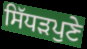
ਸਿੱਧੜਪੁਣੇ